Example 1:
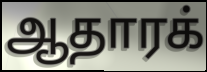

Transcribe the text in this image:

ஆதாரக்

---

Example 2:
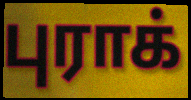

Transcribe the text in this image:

புராக்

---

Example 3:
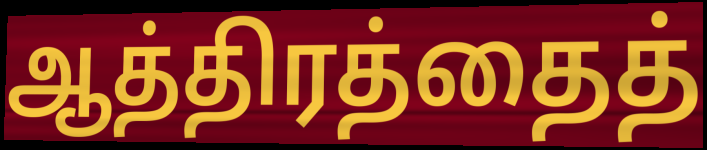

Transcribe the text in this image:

ஆத்திரத்தைத்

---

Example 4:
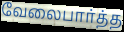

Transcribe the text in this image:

வேலைபார்த்த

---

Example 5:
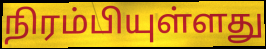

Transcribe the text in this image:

நிரம்பியுள்ளது